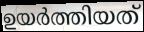
ഉയർത്തിയത്